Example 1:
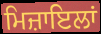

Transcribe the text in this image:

ਮਿਜ਼ਾਇਲਾਂ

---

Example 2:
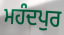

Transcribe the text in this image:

ਮਹੰਦਪੁਰ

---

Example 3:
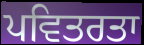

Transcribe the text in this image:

ਪਵਿਤਰਤਾ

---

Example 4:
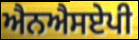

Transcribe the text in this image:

ਐਨਐਸਏਪੀ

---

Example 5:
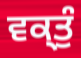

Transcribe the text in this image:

ਵਕ੍ਤੁੰ